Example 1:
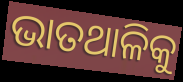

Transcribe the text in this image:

ଭାତଥାଳିକୁ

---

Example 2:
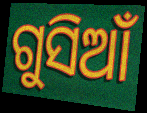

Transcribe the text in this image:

ଗୁସିଆଁ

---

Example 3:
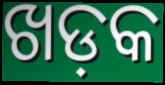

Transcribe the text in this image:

ଖଡ଼କ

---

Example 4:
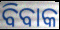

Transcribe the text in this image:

ବିବାକ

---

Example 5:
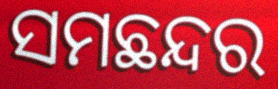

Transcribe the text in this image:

ସମଛନ୍ଦର